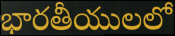
భారతీయులలో